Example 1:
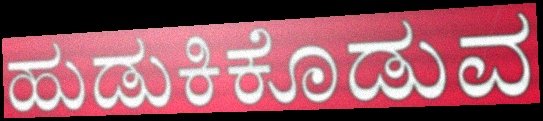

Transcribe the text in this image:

ಹುಡುಕಿಕೊಡುವ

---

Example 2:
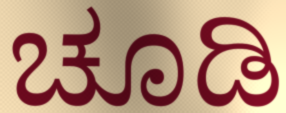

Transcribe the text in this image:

ಚೂಡಿ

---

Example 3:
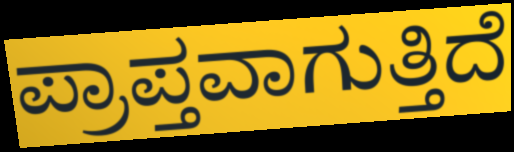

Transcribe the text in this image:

ಪ್ರಾಪ್ತವಾಗುತ್ತಿದೆ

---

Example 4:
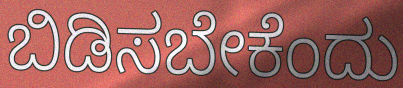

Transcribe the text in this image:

ಬಿಡಿಸಬೇಕೆಂದು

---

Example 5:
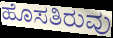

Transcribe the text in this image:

ಹೊಸತಿರುವು